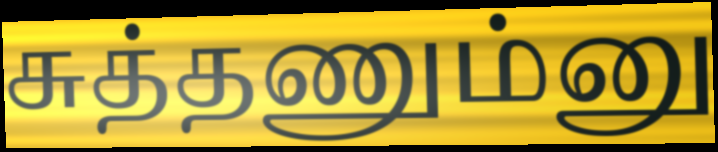
சுத்தணும்னு